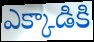
ఎక్కాడికి